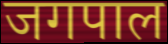
जगपाल